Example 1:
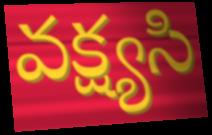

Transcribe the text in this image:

వక్ష్యసి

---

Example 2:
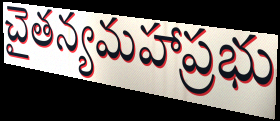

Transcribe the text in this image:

చైతన్యమహాప్రభు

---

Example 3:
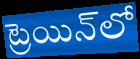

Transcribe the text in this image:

ట్రెయిన్‌లో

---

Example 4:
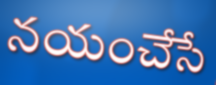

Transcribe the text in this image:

నయంచేసే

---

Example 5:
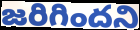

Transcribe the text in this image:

జరిగిందని